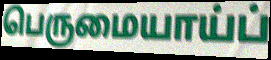
பெருமையாய்ப்